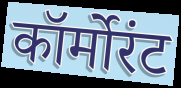
कॉर्मोरंट